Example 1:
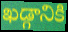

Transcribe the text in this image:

ఖడ్గానికి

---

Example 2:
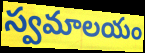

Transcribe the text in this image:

స్వమాలయం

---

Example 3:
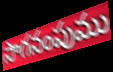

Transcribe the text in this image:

సాగనంపుము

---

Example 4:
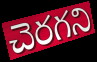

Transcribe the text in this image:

చెరగని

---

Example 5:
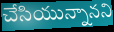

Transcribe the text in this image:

చేసియున్నానని